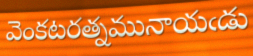
వెంకటరత్నమునాయఁడు